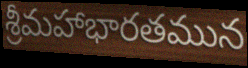
శ్రీమహాభారతమున